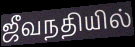
ஜீவநதியில்